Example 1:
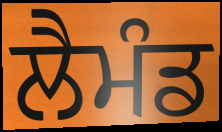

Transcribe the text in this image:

ਲੈਮੰਡ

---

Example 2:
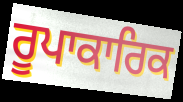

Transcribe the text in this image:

ਰੂਪਾਕਾਰਿਕ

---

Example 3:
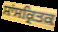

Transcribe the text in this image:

ਸਾਂਸਕ੍ਰਿਤਕ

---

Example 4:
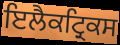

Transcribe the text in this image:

ਇਲੈਕਟ੍ਰਿਕਸ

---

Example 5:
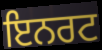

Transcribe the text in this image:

ਇਨਰਟ